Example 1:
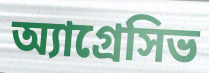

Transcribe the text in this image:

অ্যাগ্রেসিভ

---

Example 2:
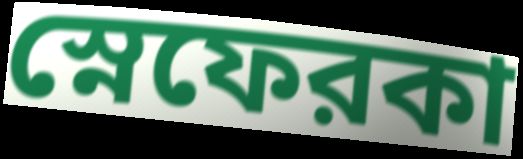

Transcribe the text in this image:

স্নেফেরকা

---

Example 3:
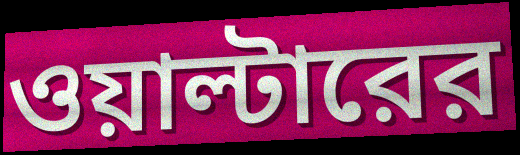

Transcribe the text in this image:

ওয়াল্টারের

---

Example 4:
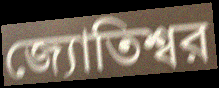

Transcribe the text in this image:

জ্যোতিশ্বর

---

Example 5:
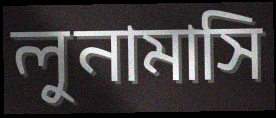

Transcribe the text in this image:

লুনামাসি